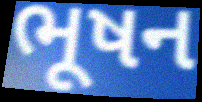
ભૂષન